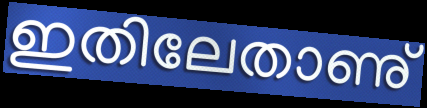
ഇതിലേതാണു്